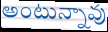
అంటున్నావు